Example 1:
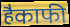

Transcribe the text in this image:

हैकाफी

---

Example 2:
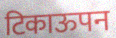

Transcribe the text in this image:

टिकाऊपन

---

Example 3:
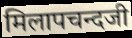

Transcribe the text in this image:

मिलापचन्दजी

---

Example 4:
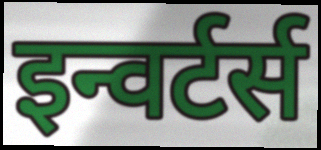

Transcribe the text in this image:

इन्वर्टर्स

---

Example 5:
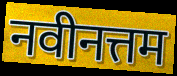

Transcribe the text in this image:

नवीनत्तम